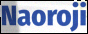
Naoroji